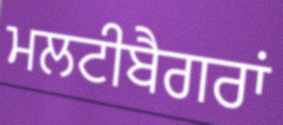
ਮਲਟੀਬੈਗਰਾਂ